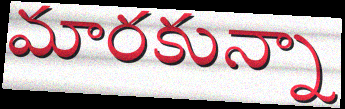
మారకున్నా